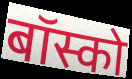
बॉस्को